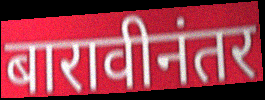
बारावीनंतर